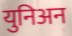
युनिअन